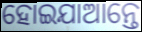
ହୋଇଯାଆନ୍ତେ